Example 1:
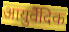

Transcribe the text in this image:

आयुर्वैदिक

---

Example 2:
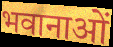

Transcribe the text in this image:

भवानाओं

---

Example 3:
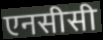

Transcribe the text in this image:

एनसीसी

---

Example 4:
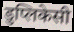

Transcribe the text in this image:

डुप्लिकेसी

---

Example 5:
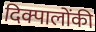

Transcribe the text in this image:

दिक्पालोंकी